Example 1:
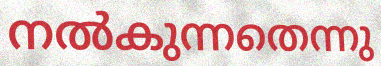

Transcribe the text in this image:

നൽകുന്നതെന്നു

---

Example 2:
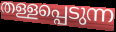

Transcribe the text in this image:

തള്ളപ്പെടുന്ന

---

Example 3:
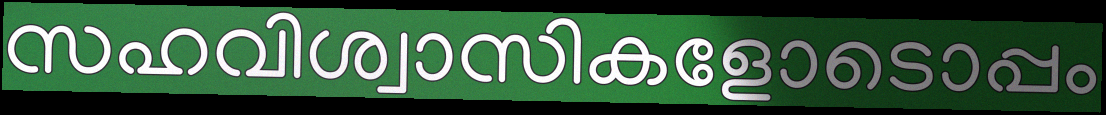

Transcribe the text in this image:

സഹവിശ്വാസികളോടൊപ്പം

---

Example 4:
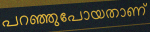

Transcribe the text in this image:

പറഞ്ഞുപോയതാണ്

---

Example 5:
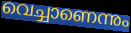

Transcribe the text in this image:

വെച്ചാണെന്നും